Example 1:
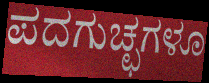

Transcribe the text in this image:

ಪದಗುಚ್ಛಗಳೂ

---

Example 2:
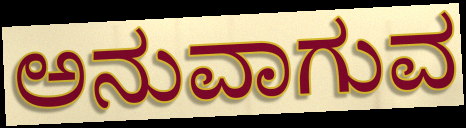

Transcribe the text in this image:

ಅನುವಾಗುವ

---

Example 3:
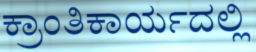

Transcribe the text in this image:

ಕ್ರಾಂತಿಕಾರ್ಯದಲ್ಲಿ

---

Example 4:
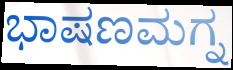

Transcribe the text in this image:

ಭಾಷಣಮಗ್ನ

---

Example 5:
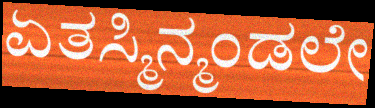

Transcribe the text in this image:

ಏತಸ್ಮಿನ್ಮಂಡಲೇ